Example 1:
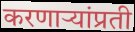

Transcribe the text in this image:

करणाऱ्यांप्रती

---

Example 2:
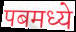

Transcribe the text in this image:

पबमध्ये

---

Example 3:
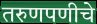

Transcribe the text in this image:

तरुणपणीचे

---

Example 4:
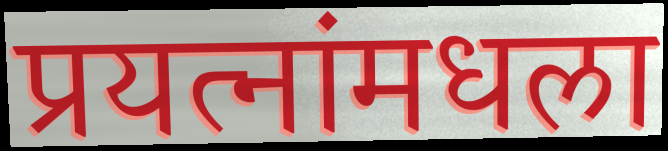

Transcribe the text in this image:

प्रयत्नांमधला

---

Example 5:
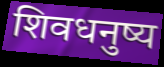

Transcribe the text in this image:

शिवधनुष्य